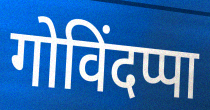
गोविंदप्पा